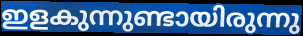
ഇളകുന്നുണ്ടായിരുന്നു